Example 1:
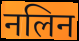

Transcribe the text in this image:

नलिन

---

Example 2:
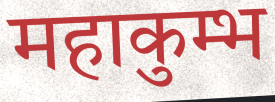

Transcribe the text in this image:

महाकुम्भ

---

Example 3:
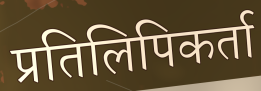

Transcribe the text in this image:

प्रतिलिपिकर्ता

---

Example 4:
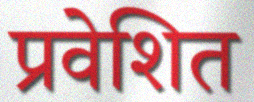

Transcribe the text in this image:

प्रवेशित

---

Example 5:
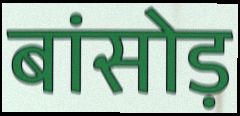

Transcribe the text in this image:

बांसोड़